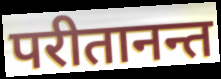
परीतानन्त